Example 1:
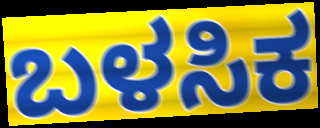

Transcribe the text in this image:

ಬಳಸಿಕ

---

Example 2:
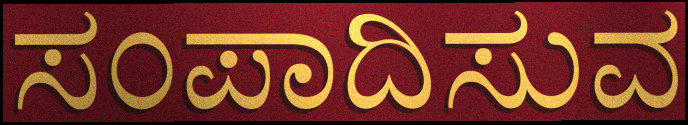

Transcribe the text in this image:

ಸಂಪಾದಿಸುವ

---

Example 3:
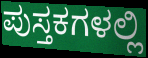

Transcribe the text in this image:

ಪುಸ್ತಕಗಳಲ್ಲಿ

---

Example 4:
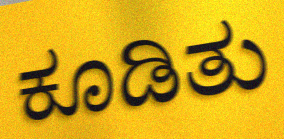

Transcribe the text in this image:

ಕೂಡಿತು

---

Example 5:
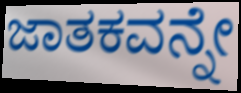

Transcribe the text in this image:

ಜಾತಕವನ್ನೇ